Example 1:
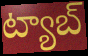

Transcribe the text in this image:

ట్యాబ్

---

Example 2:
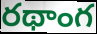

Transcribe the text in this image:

రథాంగ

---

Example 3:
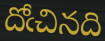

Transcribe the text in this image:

దోఁచినది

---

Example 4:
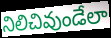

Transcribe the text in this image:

నిలిచివుండేలా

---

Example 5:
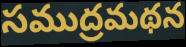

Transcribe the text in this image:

సముద్రమథన